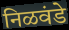
निळवंडे